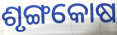
ଶୃଙ୍ଗକୋଷ